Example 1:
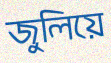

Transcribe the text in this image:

জুলিয়ে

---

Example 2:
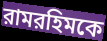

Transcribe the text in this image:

রামরহিমকে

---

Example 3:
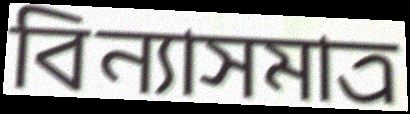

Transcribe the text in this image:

বিন্যাসমাত্র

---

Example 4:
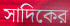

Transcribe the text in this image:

সাদিকের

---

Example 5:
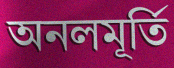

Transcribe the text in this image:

অনলমূর্তি